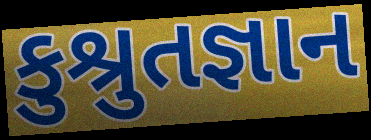
કુશ્રુતજ્ઞાન